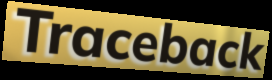
Traceback